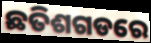
ଛତିଶଗଡରେ